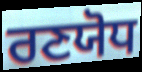
ਰਣਯੋਧ